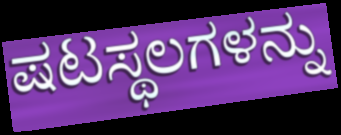
ಷಟಸ್ಥಲಗಳನ್ನು